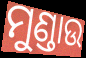
ମୁଣ୍ଡାଉ